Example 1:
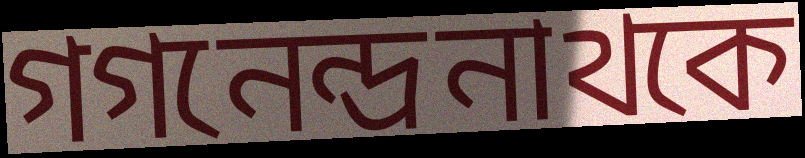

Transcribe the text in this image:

গগনেন্দ্রনাথকে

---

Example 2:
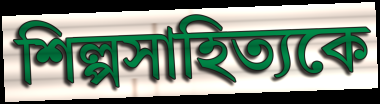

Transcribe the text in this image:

শিল্পসাহিত্যকে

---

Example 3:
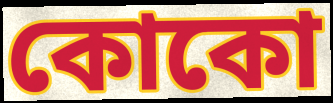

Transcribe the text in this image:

কোকো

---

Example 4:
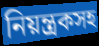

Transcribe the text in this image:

নিয়ন্ত্রকসহ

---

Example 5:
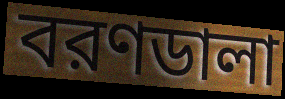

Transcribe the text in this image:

বরণডালা